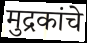
मुद्रकांचे